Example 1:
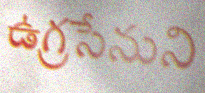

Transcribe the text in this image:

ఉగ్రసేనుని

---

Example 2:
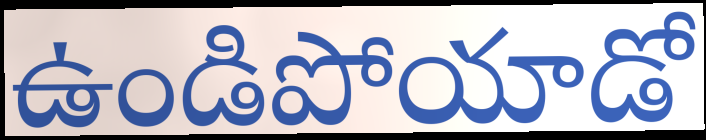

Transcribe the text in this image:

ఉండిపోయాడో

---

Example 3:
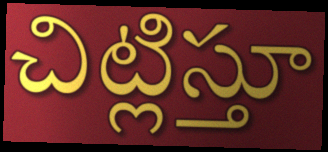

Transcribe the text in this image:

చిట్లిస్తూ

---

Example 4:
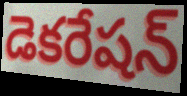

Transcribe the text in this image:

డెకరేషన్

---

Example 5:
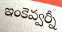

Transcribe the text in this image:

ఇంకెవ్వర్నీ